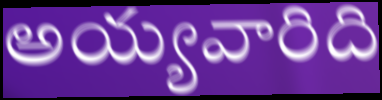
అయ్యవారిది